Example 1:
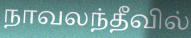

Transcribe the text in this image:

நாவலந்தீவில்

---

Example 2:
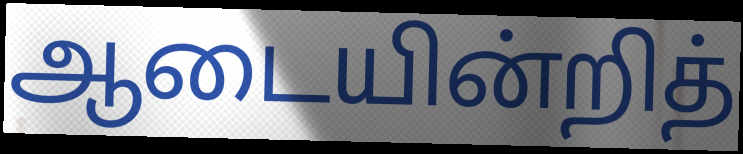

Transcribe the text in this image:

ஆடையின்றித்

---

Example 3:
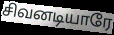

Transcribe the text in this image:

சிவனடியாரே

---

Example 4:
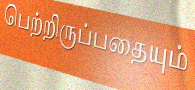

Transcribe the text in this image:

பெற்றிருப்பதையும்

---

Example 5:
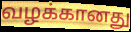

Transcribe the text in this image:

வழக்கானது